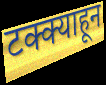
टक्क्याहून